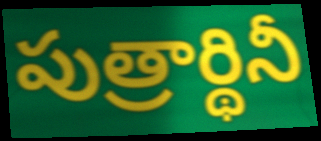
పుత్రార్థినీ